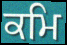
ਕਮਿ